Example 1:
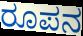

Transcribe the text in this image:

ರೂಪನ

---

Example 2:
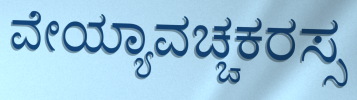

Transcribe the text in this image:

ವೇಯ್ಯಾವಚ್ಚಕರಸ್ಸ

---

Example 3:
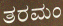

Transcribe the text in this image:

ತರಮಂ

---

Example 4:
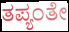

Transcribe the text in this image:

ತಪ್ಯಂತೇ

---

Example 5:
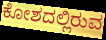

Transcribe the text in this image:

ಕೋಶದಲ್ಲಿರುವ